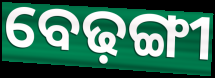
ବେଢ଼ଙ୍ଗୀ